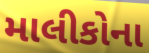
માલીકોના